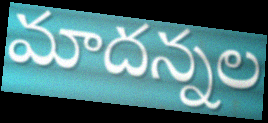
మాదన్నల